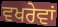
ਵਖਰੇਵਾਂ